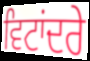
ਵਿਟਾਂਦਰੇ